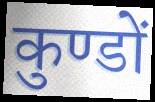
कुण्डों